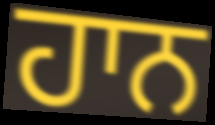
ਹਾਨ